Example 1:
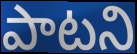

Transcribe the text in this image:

పాటని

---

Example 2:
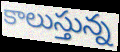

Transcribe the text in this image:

కాలుస్తున్న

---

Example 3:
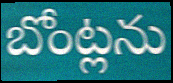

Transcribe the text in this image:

బోంట్లను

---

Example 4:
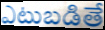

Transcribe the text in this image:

ఎటుబడితే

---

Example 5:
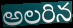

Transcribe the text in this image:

అలరిన